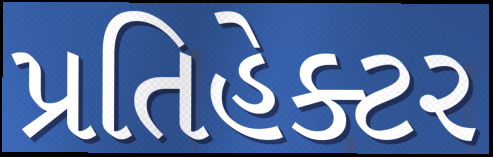
પ્રતિહેક્ટર